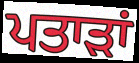
ਪਤਾੜਾਂ